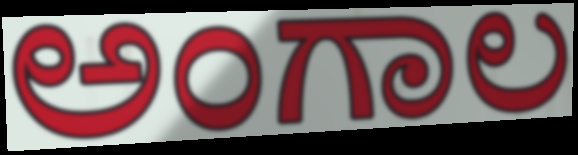
ಅಂಗಾಲ